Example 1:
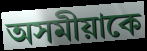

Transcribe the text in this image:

অসমীয়াকে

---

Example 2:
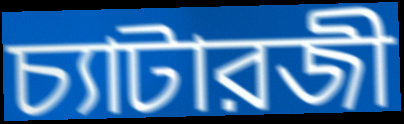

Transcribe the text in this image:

চ্যাটারজী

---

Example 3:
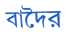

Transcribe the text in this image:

বাদৈর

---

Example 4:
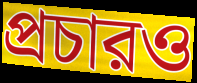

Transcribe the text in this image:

প্রচারও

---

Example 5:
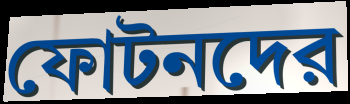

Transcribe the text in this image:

ফোটনদের